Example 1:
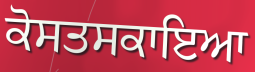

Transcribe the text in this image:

ਕੋਸਤਸਕਾਇਆ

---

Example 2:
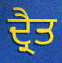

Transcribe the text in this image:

ਦ੍ਰੈਤ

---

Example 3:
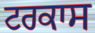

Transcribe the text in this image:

ਟਰਕਾਸ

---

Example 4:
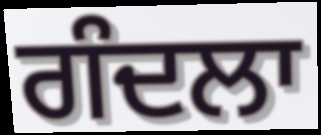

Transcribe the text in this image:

ਗੰਦਲਾ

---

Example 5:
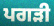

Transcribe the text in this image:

ਪਗੜੀ